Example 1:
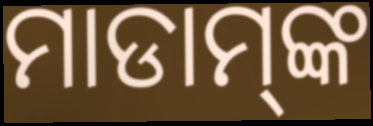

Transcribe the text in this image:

ମାଡାମ୍‌ଙ୍କ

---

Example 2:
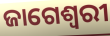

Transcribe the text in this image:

ଜାଗେଶ୍ୱରୀ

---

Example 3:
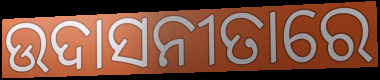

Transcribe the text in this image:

ଉଦାସନୀତାରେ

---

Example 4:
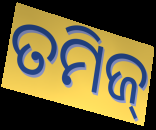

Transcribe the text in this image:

ତମିଜ୍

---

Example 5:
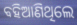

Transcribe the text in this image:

ବହିଆଣିଥିଲେ